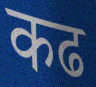
कढ